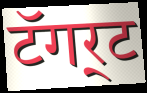
टॅगर्ट